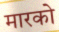
मारको